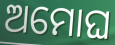
ଅମୋଘ